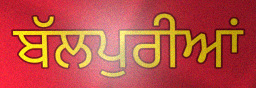
ਬੱਲਪੁਰੀਆਂ